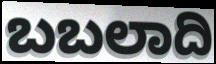
ಬಬಲಾದಿ